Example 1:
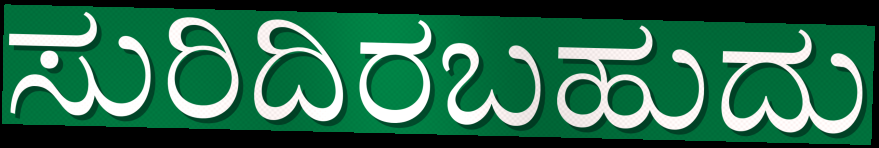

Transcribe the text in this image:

ಸುರಿದಿರಬಹುದು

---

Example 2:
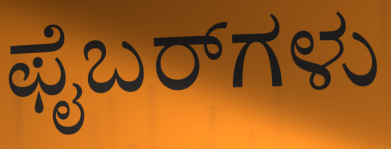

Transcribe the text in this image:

ಫೈಬರ್‌ಗಳು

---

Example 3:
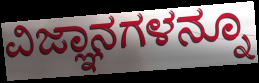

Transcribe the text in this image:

ವಿಜ್ಞಾನಗಳನ್ನೂ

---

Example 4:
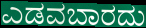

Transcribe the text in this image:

ಎಡವಬಾರದು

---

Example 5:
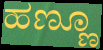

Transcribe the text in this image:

ಹಣ್ಣೂ